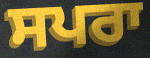
ਸਪਰਾ